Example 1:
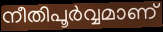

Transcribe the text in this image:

നീതിപൂർവ്വമാണ്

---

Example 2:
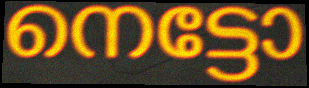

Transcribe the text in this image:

നെട്ടോ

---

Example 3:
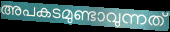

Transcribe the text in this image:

അപകടമുണ്ടാവുന്നത്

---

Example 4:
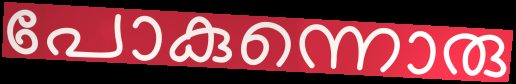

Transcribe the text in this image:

പോകുന്നൊരു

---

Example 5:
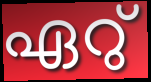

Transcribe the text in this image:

ഏറു്